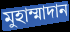
মুহাম্মাদান